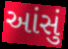
આંસું